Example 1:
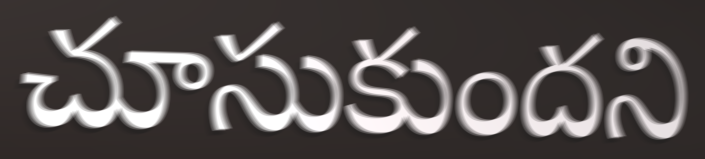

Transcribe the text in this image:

చూసుకుందని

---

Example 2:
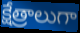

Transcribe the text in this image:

క్షేత్రాలుగా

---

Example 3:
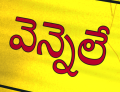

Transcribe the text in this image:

వెన్నెలే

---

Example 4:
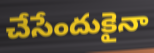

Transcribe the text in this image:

చేసేందుకైనా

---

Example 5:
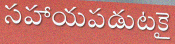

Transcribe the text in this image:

సహాయపడుటకై